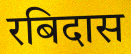
रबिदास